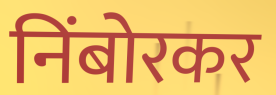
निंबोरकर